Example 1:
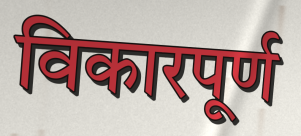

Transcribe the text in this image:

विकारपूर्ण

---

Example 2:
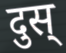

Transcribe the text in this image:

दुस्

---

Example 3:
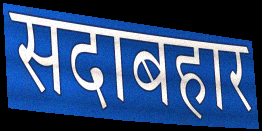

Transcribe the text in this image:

सदाबहार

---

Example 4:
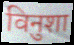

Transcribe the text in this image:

विनुशा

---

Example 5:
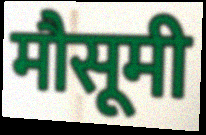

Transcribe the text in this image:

मौसूमी